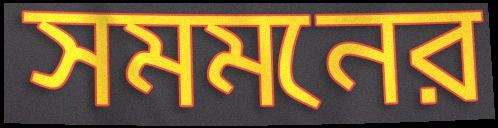
সমমনের